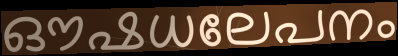
ഔഷധലേപനം